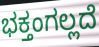
ಭಕ್ತಂಗಲ್ಲದೆ